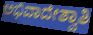
ಅಭಿವಾದೇತ್ವಾತಿ